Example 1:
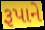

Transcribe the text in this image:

રૂપાને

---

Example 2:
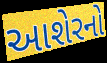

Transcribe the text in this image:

આશેરનો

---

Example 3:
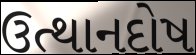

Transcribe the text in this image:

ઉત્થાનદોષ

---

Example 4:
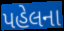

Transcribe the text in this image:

પહેલના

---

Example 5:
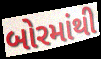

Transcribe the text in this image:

બોરમાંથી